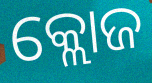
କ୍ଲୋଜ